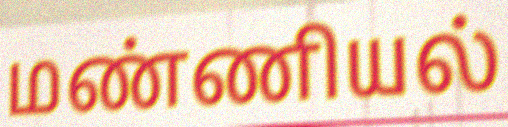
மண்ணியல்